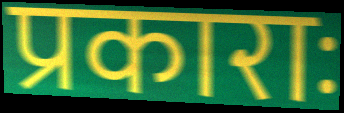
प्रकाराः